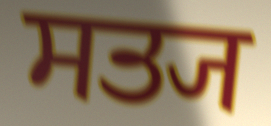
ਸਤ੍ਯ